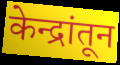
केन्द्रांतून